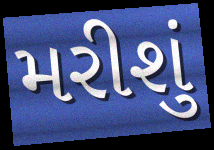
મરીશું